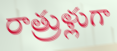
రాత్రుళ్లుగా